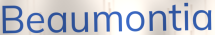
Beaumontia